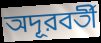
অদূরবর্তী